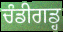
ਚੰਡੀਗਡ੍ਹ